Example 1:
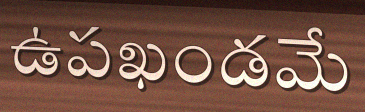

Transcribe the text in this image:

ఉపఖండమే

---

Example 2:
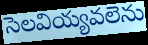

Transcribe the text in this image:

సెలవియ్యవలెను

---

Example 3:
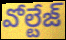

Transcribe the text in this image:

వోల్టేజ్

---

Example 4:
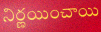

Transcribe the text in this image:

నిర్ణయించాయి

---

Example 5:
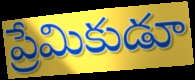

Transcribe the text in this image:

ప్రేమికుడూ